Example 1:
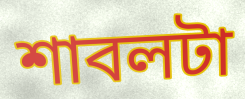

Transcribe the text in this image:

শাবলটা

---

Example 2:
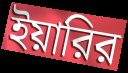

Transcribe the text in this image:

ইয়ারির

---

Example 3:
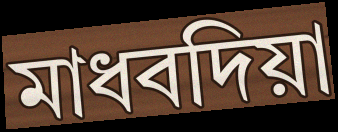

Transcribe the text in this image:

মাধবদিয়া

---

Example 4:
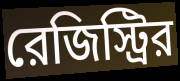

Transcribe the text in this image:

রেজিস্ট্রির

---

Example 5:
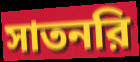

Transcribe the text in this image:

সাতনরি